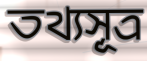
তথ্যসূত্ৰ